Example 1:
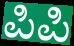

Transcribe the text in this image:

ಪಿಪಿ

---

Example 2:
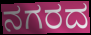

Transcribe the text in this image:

ನಗರದ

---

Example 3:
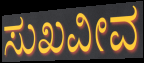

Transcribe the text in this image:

ಸುಖವೀವ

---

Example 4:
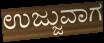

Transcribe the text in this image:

ಉಜ್ಜುವಾಗ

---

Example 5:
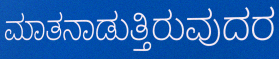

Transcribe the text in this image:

ಮಾತನಾಡುತ್ತಿರುವುದರ